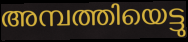
അമ്പത്തിയെട്ടു